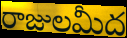
రాజులమీద